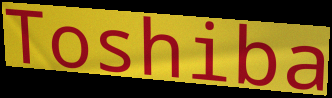
Toshiba